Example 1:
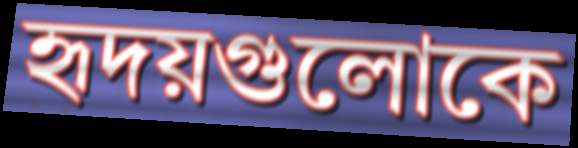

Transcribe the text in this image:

হৃদয়গুলোকে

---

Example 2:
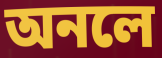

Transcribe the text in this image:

অনলে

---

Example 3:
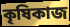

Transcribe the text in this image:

কৃষিকাজ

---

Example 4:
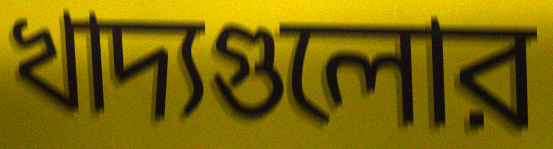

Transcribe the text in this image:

খাদ্যগুলোর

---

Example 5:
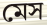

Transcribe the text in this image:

মেস